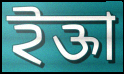
ইক্তা